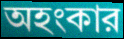
অহংকার